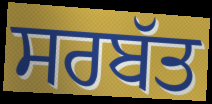
ਸਰਬੱਤ